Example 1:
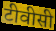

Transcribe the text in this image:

टीवीसी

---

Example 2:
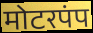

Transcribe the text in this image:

मोटरपंप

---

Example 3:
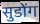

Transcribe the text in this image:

सुडोंग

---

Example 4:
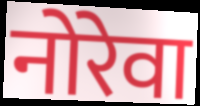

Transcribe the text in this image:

नोरेवा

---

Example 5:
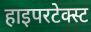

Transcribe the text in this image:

हाइपरटेक्स्ट